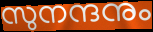
സുനന്ദനും